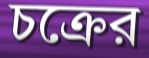
চক্রের